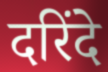
दरिंदे